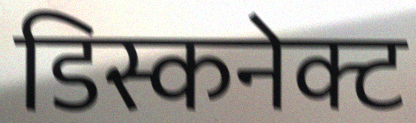
डिस्कनेक्ट